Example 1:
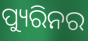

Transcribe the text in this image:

ପ୍ୟୁରିନର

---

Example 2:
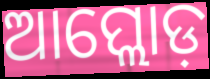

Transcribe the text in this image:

ଆପ୍ଲୋଡ଼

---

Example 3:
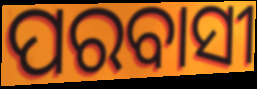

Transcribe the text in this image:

ପରବାସୀ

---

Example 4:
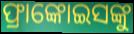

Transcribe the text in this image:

ଫ୍ରାଙ୍କୋଇସଙ୍କୁ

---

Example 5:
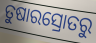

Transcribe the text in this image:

ତୁଷାରସ୍ରୋତରୁ